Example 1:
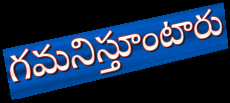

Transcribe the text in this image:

గమనిస్తూంటారు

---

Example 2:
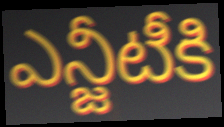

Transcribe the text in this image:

ఎన్జీటీకి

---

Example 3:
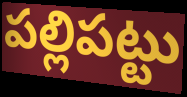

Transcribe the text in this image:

పల్లిపట్టు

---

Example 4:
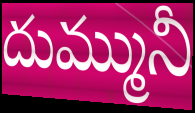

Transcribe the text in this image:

దుమ్మునీ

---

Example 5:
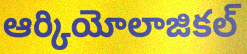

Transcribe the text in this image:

ఆర్కియోలాజికల్